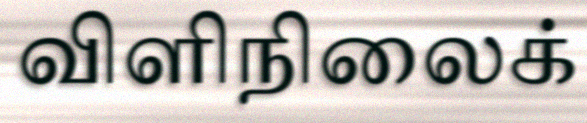
விளிநிலைக்